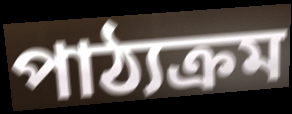
পাঠ্যক্ৰম